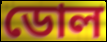
ডোল